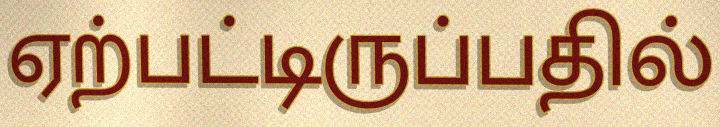
ஏற்பட்டிருப்பதில்